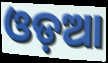
ଓଡ଼ଆ